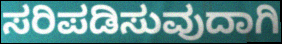
ಸರಿಪಡಿಸುವುದಾಗಿ